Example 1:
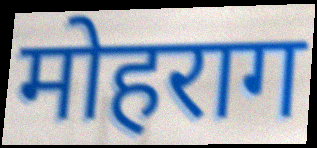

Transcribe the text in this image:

मोहराग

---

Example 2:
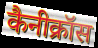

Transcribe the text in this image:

कैनीक्रॉस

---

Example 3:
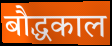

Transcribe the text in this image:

बौद्धकाल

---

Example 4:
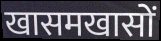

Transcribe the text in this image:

खासमखासों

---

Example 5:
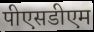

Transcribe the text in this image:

पीएसडीएम